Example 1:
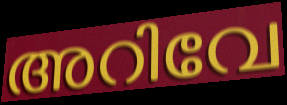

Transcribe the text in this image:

അറിവേ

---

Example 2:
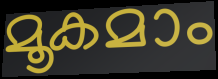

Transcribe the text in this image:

മൂകമാം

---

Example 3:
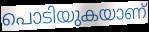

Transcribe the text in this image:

പൊടിയുകയാണ്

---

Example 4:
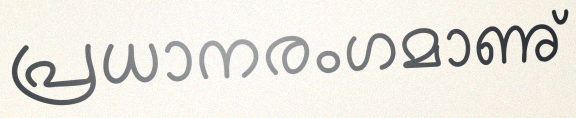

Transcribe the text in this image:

പ്രധാനരംഗമാണു്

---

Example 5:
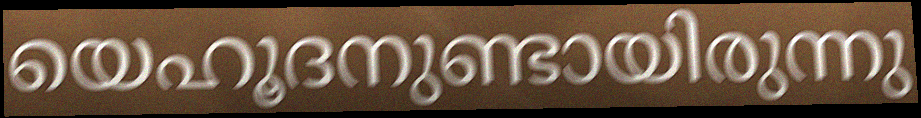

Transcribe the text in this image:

യെഹൂദനുണ്ടായിരുന്നു